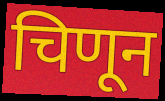
चिणून